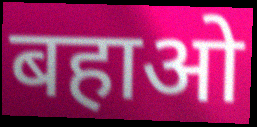
बहाओ